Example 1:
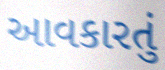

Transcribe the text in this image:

આવકારતું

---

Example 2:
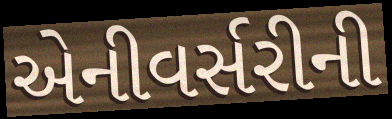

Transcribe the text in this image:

એનીવર્સરીની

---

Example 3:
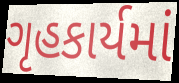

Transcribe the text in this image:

ગૃહકાર્યમાં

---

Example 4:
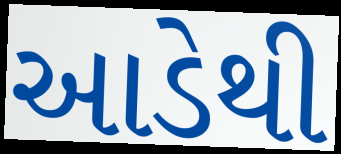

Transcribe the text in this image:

આડેથી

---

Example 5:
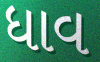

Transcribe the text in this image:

ધાવ